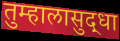
तुम्हालासुद्धा